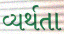
વ્યર્થતા